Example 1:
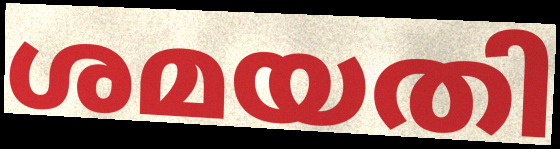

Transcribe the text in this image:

ശമയതി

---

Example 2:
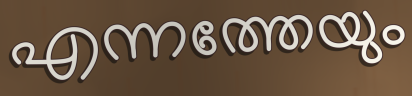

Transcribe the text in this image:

എന്നത്തേയും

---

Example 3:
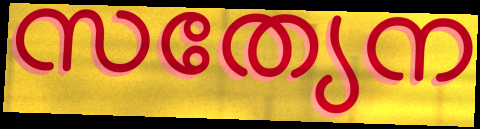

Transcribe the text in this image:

സത്യേന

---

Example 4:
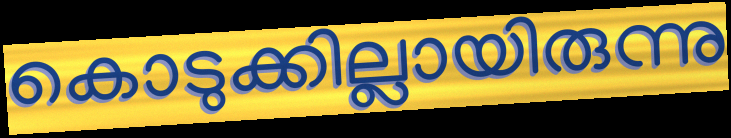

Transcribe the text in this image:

കൊടുക്കില്ലായിരുന്നു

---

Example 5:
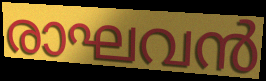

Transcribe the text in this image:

രാഘവൻ